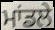
ਮਾਂਡਲੇ